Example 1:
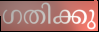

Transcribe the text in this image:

ഗതിക്കു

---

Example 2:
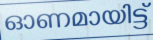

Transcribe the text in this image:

ഓണമായിട്ട്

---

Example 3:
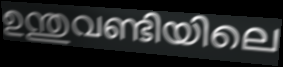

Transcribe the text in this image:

ഉന്തുവണ്ടിയിലെ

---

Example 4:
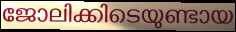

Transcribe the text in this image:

ജോലിക്കിടെയുണ്ടായ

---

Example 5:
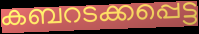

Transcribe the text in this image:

കബറടക്കപ്പെട്ട